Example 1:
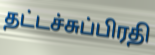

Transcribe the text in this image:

தட்டச்சுப்பிரதி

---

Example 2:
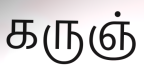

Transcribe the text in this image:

கருஞ்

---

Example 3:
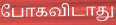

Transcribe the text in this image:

போகவிடாது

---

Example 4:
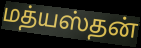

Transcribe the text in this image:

மத்யஸ்தன்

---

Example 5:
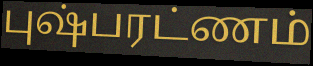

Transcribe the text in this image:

புஷ்பரட்ணம்